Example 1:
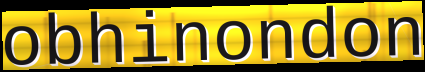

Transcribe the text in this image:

obhinondon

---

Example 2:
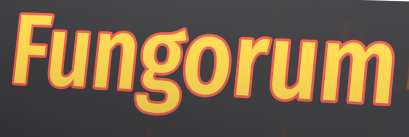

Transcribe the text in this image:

Fungorum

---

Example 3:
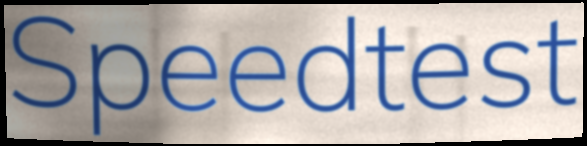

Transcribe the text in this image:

Speedtest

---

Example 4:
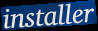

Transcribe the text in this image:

installer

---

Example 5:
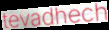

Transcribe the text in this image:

tevadhech